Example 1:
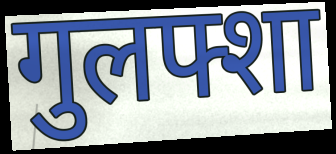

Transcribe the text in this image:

गुलफ्शा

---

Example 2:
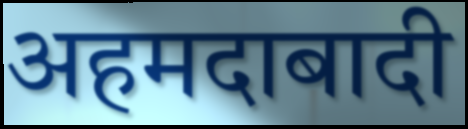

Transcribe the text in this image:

अहमदाबादी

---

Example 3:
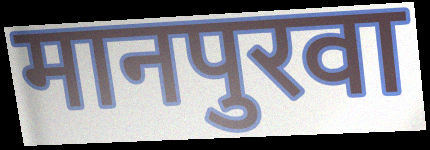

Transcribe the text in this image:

मानपुरवा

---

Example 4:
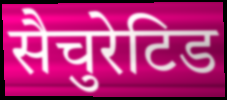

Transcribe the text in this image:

सैचुरेटिड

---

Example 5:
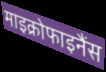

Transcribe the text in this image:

माइक्रोफाइनैंस